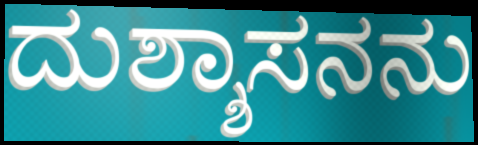
ದುಶ್ಶಾಸನನು